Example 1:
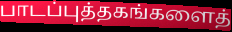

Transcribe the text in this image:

பாடப்புத்தகங்களைத்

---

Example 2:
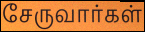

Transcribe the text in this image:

சேருவார்கள்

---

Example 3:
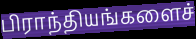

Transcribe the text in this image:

பிராந்தியங்களைச்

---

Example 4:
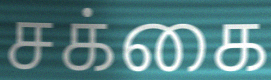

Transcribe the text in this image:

சக்கை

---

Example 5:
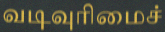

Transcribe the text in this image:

வடிவுரிமைச்